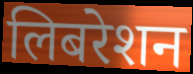
लिबरेशन